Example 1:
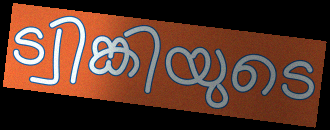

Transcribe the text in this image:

ട്വിങ്കിയുടെ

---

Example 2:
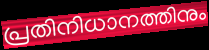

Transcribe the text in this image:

പ്രതിനിധാനത്തിനും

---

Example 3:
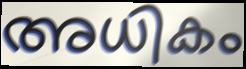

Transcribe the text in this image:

അധികം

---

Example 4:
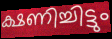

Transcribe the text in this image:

ക്ഷണിച്ചിട്ടും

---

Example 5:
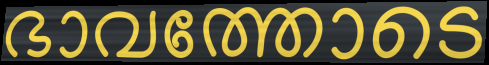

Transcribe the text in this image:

ഭാവത്തോടെ